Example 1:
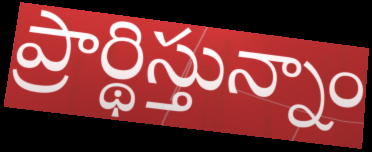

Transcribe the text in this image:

ప్రార్థిస్తున్నాం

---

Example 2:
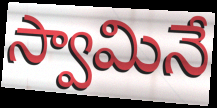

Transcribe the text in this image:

స్వామినే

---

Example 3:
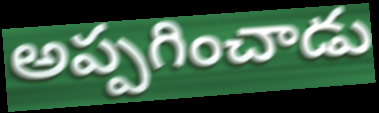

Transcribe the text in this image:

అప్పగించాడు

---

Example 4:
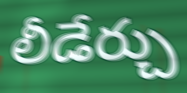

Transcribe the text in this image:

లీడేర్చు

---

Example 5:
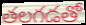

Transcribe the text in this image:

తలగడతో